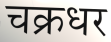
चक्रधर